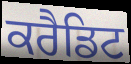
ਕਰੈਡਿਟ